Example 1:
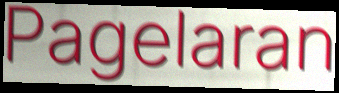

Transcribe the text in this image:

Pagelaran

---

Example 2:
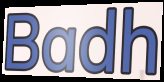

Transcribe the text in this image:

Badh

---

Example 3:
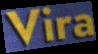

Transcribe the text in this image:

Vira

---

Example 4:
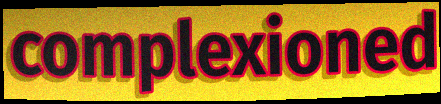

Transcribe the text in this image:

complexioned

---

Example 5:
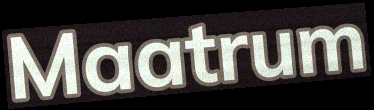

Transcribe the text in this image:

Maatrum